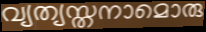
വ്യത്യസ്തനാമൊരു